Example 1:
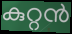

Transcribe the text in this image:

കുറ്റൻ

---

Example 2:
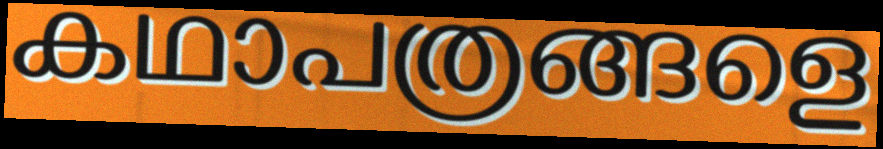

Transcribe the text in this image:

കഥാപത്രങ്ങളെ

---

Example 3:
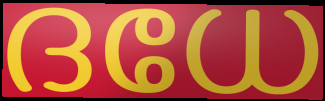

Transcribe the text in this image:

ദധേ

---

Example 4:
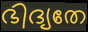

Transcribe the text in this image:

ഭിദ്യതേ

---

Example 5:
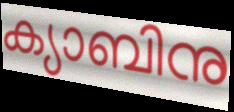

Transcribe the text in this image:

ക്യാബിനു